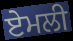
ਏਮਲੀ